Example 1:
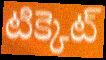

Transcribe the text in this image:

టిక్కెట్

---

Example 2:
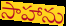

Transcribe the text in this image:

సాహాను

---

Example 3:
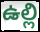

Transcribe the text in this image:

ఉల్లి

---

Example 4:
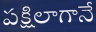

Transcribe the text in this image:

పక్షిలాగానే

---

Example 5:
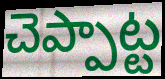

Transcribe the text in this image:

చెప్పాట్ట